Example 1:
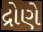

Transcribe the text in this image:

દ્રોણે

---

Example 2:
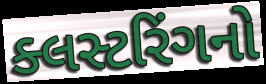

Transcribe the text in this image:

ક્લસ્ટરિંગનો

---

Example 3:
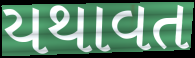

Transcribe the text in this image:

યથાવત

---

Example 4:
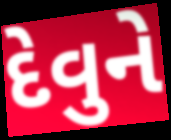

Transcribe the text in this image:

દેવુને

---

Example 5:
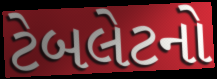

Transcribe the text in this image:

ટેબલેટનો